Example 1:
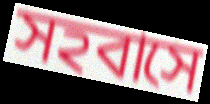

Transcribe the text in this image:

সহবাসে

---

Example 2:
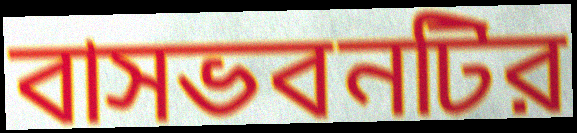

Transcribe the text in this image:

বাসভবনটির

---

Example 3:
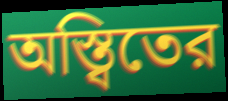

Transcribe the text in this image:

অস্ত্বিতের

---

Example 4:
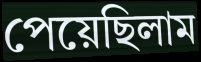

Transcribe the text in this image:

পেয়েছিলাম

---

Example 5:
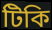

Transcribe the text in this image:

টিকি